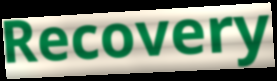
Recovery